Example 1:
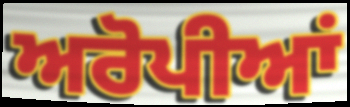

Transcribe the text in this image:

ਅਰੋਪੀਆਂ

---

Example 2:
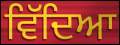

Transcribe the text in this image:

ਵਿੱਦਿਆ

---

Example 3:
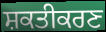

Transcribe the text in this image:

ਸ਼ਕਤੀਕਰਣ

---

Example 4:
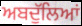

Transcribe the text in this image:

ਅਬਦੁੱਲਿਆਂ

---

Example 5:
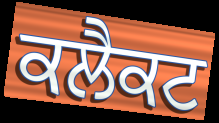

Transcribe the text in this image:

ਕਲੈਕਟ